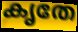
കൃതേ